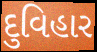
દુવિહાર